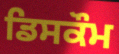
ਡਿਸਕੌਮ